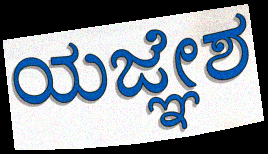
ಯಜ್ಞೇಶ